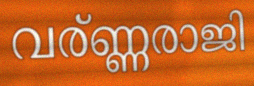
വര്ണ്ണരാജി